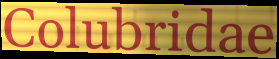
Colubridae